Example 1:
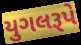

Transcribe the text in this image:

યુગલરૂપે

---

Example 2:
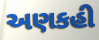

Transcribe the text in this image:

અણકહી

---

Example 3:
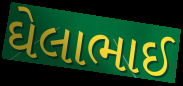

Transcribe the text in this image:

ઘેલાભાઈ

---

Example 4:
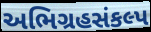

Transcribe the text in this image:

અભિગ્રહસંકલ્પ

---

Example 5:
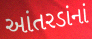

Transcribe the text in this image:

આંતરડાંનાં